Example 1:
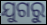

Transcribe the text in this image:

ଯୁଗରୁ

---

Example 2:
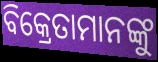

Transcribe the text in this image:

ବିକ୍ରେତାମାନଙ୍କୁ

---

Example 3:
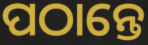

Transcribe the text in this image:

ପଠାନ୍ତେ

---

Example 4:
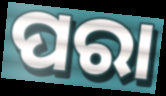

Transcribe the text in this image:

ପରା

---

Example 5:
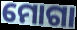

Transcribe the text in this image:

ମୋଗା